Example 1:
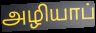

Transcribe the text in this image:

அழியாப்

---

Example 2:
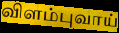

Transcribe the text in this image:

விளம்புவாய்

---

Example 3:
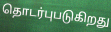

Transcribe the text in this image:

தொடர்புபடுகிறது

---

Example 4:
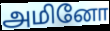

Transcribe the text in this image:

அமினோ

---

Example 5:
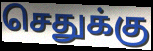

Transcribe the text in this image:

செதுக்கு